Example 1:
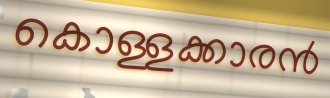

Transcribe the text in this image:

കൊള്ളക്കാരൻ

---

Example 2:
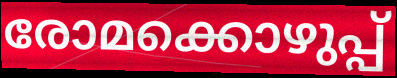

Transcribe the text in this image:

രോമക്കൊഴുപ്പ്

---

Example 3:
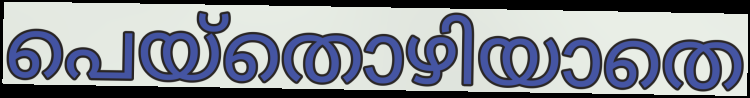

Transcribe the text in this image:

പെയ്തൊഴിയാതെ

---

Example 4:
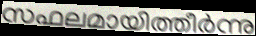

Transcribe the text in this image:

സഫലമായിത്തീർന്നു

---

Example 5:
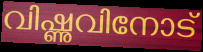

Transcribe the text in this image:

വിഷ്ണുവിനോട്